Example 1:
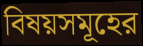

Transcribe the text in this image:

বিষয়সমূহের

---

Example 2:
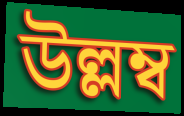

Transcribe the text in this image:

উল্লম্ব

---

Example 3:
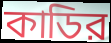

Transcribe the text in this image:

কাডির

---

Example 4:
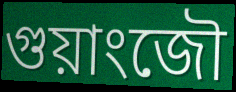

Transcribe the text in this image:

গুয়াংজৌ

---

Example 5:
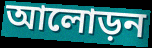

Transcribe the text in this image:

আলোড়ন